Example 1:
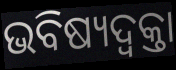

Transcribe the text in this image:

ଭବିଷ୍ୟଦ୍ବକ୍ତା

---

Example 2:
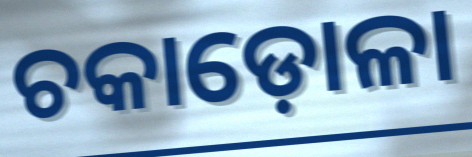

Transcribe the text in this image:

ଚକାଡ଼ୋଳା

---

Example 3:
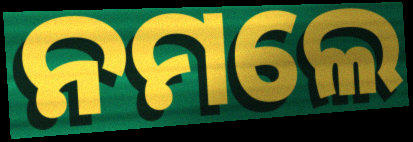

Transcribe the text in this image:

ନମଲେ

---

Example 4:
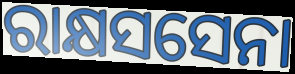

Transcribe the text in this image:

ରାକ୍ଷସସେନା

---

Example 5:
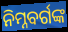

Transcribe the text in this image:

ନିମ୍ନବର୍ଗଙ୍କ